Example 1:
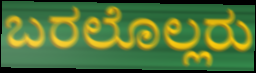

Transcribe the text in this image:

ಬರಲೊಲ್ಲರು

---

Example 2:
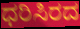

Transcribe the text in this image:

ಧರಿಸಿರದ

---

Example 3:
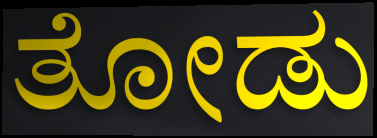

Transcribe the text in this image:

ತೋಡು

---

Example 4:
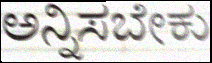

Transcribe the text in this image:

ಅನ್ನಿಸಬೇಕು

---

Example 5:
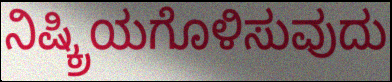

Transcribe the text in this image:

ನಿಷ್ಕ್ರಿಯಗೊಳಿಸುವುದು